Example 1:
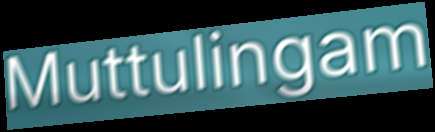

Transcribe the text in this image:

Muttulingam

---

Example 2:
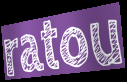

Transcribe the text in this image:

ratou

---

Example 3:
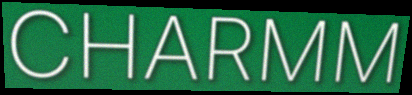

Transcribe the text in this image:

CHARMM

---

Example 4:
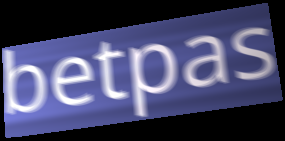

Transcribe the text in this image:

betpas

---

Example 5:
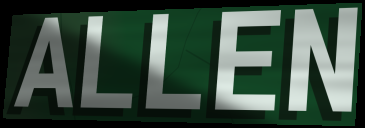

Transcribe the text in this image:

ALLEN